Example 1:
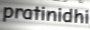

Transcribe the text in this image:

pratinidhi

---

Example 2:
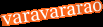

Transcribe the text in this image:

varavararao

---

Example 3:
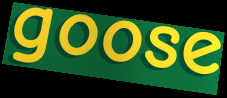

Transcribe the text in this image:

goose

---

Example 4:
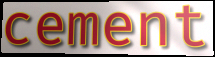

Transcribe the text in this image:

cement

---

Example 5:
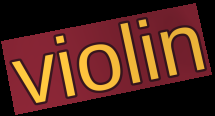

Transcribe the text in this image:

violin